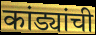
कांड्यांची